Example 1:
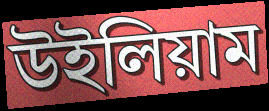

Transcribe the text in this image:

উইলিয়াম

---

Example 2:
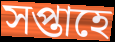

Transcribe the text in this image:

সপ্তাহে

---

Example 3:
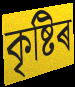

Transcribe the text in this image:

কৃষ্টিৰ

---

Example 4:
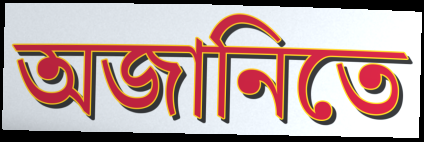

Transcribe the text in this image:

অজানিতে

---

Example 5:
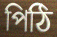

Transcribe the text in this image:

পিঠি